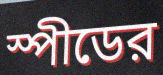
স্পীডের